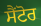
ਸੈਂਟੋਰ